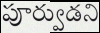
పూర్వుడని